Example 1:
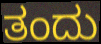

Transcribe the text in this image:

ತಂದು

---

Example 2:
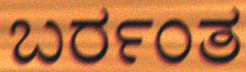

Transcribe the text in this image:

ಬರ್ರಂತ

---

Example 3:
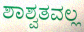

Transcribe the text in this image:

ಶಾಶ್ವತವಲ್ಲ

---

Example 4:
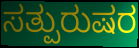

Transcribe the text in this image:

ಸತ್ಪುರುಷರ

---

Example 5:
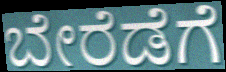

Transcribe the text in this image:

ಬೇರೆಡೆಗೆ